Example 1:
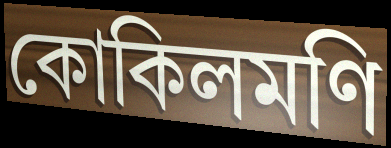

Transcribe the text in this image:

কোকিলমণি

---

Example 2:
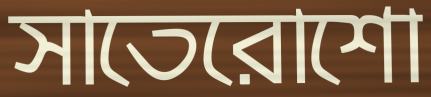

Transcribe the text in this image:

সাতেরোশো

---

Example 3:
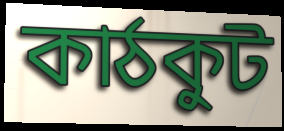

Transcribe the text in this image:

কাঠকুট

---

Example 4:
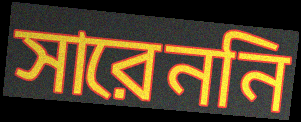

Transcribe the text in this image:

সারেননি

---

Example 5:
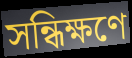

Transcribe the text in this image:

সন্ধিক্ষণে